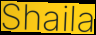
Shaila